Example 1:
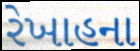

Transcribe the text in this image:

રેખાહના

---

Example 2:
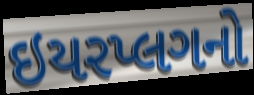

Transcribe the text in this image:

ઇયરપ્લગનો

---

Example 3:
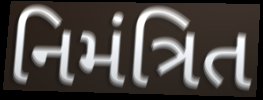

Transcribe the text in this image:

નિમંત્રિત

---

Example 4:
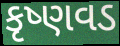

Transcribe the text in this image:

કૃષ્ણવડ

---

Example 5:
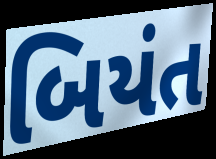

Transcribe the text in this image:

બિયંત